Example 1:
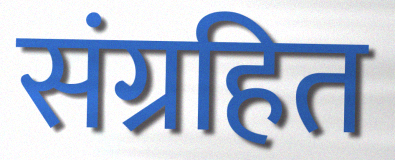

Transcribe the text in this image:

संग्रहित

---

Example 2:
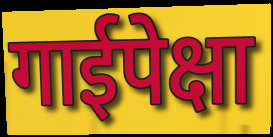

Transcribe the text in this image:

गाईपेक्षा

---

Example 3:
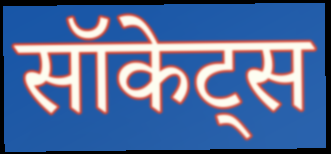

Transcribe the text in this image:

सॉकेट्स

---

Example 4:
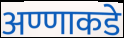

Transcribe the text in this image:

अण्णाकडे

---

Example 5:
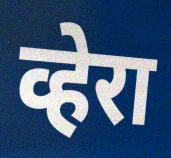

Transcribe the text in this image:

व्हेरा